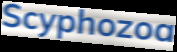
Scyphozoa